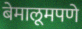
बेमालूमपणे